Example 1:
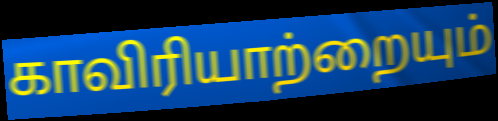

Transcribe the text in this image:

காவிரியாற்றையும்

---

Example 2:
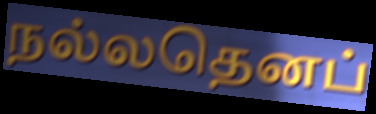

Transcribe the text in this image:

நல்லதெனப்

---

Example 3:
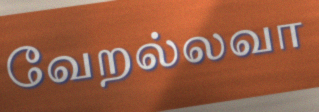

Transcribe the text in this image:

வேறல்லவா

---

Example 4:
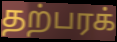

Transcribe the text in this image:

தற்பரக்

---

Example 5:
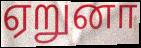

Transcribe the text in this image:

ஏறுனா